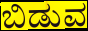
ಬಿಡುವ